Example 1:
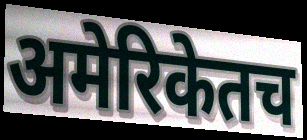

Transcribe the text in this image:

अमेरिकेतच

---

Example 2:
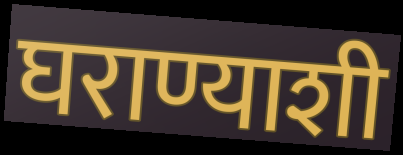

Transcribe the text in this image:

घराण्याशी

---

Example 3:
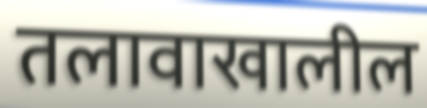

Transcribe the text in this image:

तलावाखालील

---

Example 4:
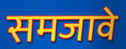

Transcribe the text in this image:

समजावे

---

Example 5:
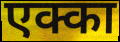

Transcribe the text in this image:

एक्का